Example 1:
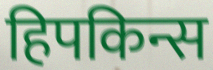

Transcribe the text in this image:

हिपकिन्स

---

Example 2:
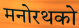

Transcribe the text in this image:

मनोरथको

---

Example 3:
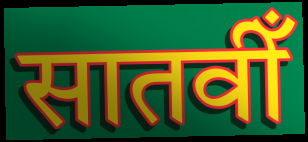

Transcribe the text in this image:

सातवीँ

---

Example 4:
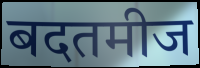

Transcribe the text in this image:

बदतमीज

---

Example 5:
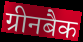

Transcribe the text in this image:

ग्रीनबैक